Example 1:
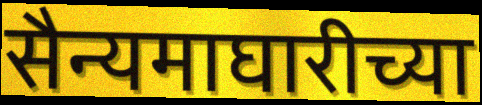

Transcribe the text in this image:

सैन्यमाघारीच्या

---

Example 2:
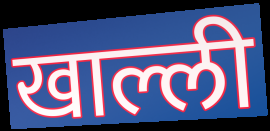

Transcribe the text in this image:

खाल्ली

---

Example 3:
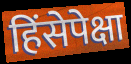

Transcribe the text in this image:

हिंसेपेक्षा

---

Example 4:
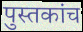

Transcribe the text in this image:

पुस्तकांच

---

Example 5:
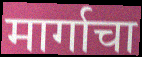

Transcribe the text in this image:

मार्गाचा